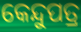
କେନ୍ଦୁପତ୍ର